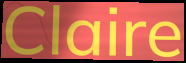
Claire